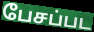
பேசப்பட